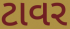
ટાવર